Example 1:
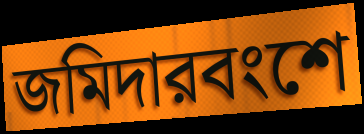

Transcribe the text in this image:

জমিদারবংশে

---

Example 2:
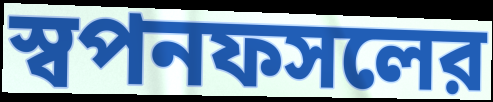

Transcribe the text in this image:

স্বপনফসলের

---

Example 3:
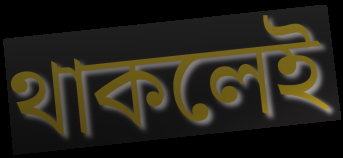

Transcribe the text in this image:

থাকলেই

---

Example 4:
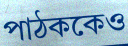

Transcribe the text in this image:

পাঠককেও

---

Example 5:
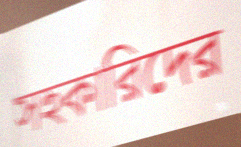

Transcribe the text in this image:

সহকারিদের